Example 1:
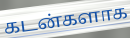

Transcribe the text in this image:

கடன்களாக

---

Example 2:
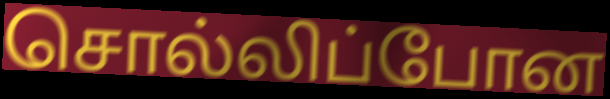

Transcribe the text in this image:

சொல்லிப்போன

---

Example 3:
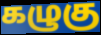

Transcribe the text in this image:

கழுகு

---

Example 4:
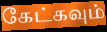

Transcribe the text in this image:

கேட்கவும்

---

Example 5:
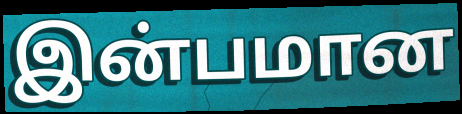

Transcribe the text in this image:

இன்பமான